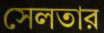
সেলতার